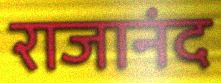
राजानंद